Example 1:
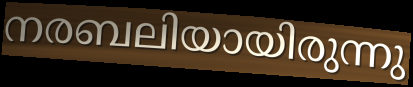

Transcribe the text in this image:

നരബലിയായിരുന്നു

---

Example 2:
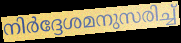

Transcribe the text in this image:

നിർദ്ദേശമനുസരിച്ച്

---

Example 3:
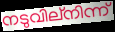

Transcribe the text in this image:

നടുവില്നിന്ന്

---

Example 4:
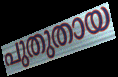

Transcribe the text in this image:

പുതുതായ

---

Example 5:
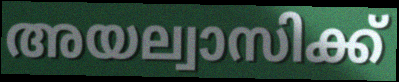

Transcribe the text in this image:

അയല്വാസിക്ക്